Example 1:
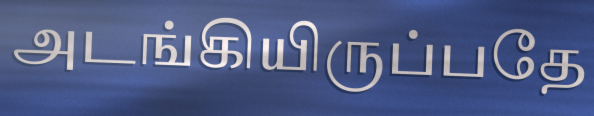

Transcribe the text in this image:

அடங்கியிருப்பதே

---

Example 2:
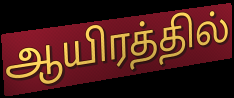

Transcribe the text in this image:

ஆயிரத்தில்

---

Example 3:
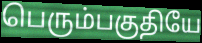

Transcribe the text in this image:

பெரும்பகுதியே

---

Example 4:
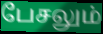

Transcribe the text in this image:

பேசலும்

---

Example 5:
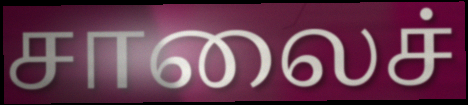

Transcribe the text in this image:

சாலைச்